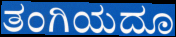
ತಂಗಿಯದೂ